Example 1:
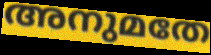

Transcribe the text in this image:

അനുമതേ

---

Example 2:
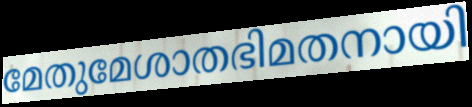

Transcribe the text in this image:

മേതുമേശാതഭിമതനായി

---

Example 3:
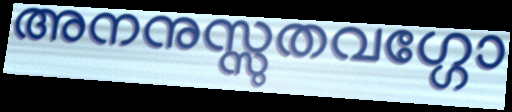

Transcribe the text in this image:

അനനുസ്സുതവഗ്ഗോ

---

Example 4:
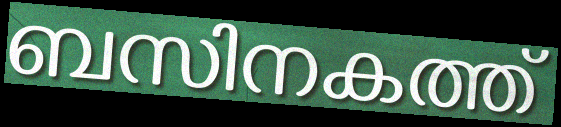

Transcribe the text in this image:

ബസിനകത്ത്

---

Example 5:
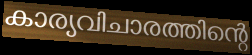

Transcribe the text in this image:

കാര്യവിചാരത്തിന്റെ